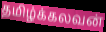
தமிழ்க்கலவன்